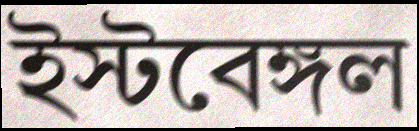
ইস্টবেঙ্গল